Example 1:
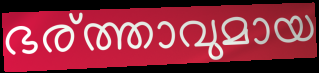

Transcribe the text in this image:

ഭര്ത്താവുമായ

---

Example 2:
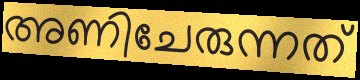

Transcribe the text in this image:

അണിചേരുന്നത്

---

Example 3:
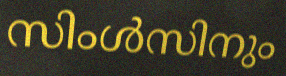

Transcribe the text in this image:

സിംൾസിനും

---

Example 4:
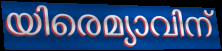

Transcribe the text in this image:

യിരെമ്യാവിന്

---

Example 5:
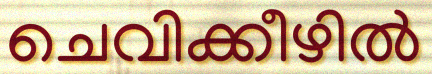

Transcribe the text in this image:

ചെവിക്കീഴിൽ